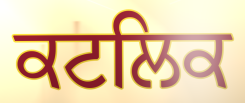
ਕਟਲਿਕ